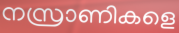
നസ്രാണികളെ